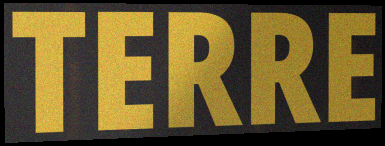
TERRE